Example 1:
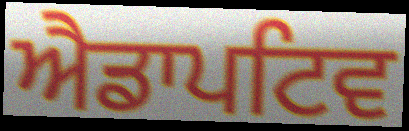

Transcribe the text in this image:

ਐਡਾਪਟਿਵ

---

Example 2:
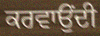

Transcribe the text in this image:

ਕਰਵਾਉਂਦੀ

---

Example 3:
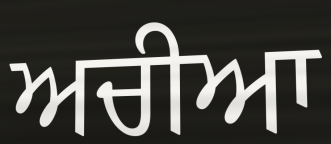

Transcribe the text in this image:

ਅਚੀਆ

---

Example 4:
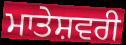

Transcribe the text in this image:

ਮਾਤੇਸ਼ਵਰੀ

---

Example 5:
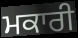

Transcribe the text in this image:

ਮਕਾਰੀ